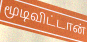
மூடிவிட்டான்